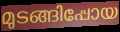
മുടങ്ങിപ്പോയ